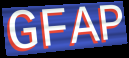
GFAP